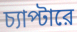
চ্যাপ্টারে